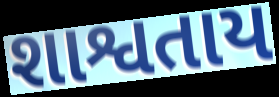
શાશ્વતાય